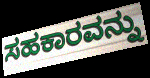
ಸಹಕಾರವನ್ನು